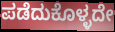
ಪಡೆದುಕೊಳ್ಳದೇ